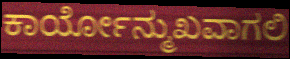
ಕಾರ್ಯೋನ್ಮುಖವಾಗಲಿ